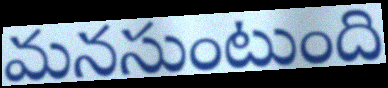
మనసుంటుంది